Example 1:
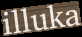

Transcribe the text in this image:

illuka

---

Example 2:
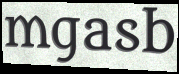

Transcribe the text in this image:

mgasb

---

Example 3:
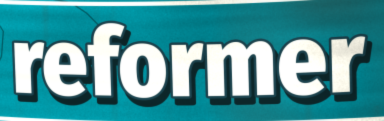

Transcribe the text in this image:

reformer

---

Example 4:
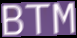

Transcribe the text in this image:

BTM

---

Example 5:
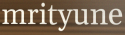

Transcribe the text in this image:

mrityune